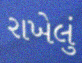
રાખેલું